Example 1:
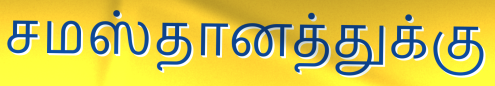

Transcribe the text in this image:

சமஸ்தானத்துக்கு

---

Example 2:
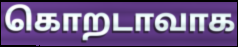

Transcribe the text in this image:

கொறடாவாக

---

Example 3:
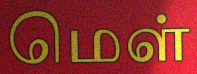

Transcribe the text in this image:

மெள்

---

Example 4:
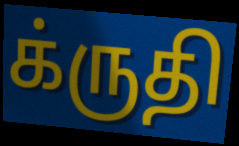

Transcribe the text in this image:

க்ருதி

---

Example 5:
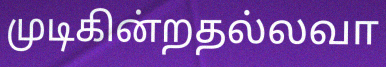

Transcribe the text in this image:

முடிகின்றதல்லவா